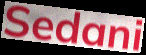
Sedani